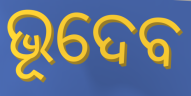
ଭୂଦେବ